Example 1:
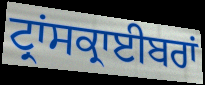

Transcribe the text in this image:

ਟ੍ਰਾਂਸਕ੍ਰਾਈਬਰਾਂ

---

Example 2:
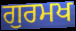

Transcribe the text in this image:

ਗੁਰਮਖ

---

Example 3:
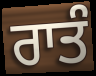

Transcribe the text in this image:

ਰਾਤੰ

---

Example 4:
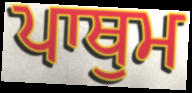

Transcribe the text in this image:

ਪਾਥੁਮ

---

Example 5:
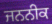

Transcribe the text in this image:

ਜਨਨੀਕ